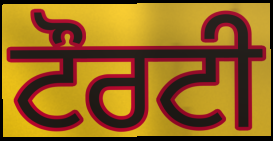
ਟੌਰਟੀ